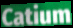
Catium